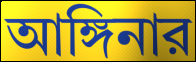
আঙ্গিনার